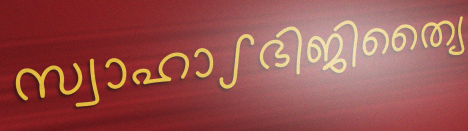
സ്വാഹാഽഭിജിത്യൈ